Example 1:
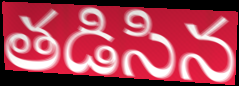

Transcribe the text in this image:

తడిసిన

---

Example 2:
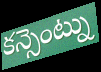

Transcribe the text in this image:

కన్సెంట్ను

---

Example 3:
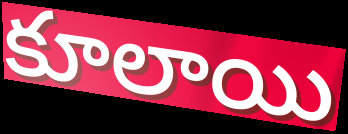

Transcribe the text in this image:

కూలాయి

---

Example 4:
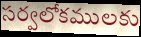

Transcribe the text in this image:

సర్వలోకములకు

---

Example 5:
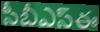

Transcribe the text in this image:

సీబీఎస్ఈ